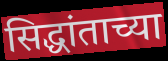
सिद्धांताच्या